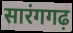
सारंगगढ़